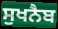
ਸੁਖਨੈਬ